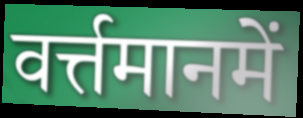
वर्त्तमानमें